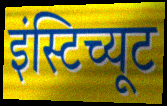
इंस्टिच्यूट